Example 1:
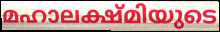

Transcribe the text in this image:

മഹാലക്ഷ്മിയുടെ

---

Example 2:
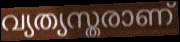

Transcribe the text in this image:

വ്യത്യസ്തരാണ്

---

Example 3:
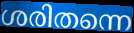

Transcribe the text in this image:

ശരിതന്നെ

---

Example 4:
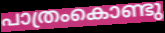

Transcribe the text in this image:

പാത്രംകൊണ്ടു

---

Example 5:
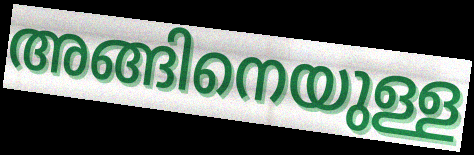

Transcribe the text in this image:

അങ്ങിനെയുള്ള